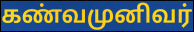
கண்வமுனிவர்